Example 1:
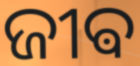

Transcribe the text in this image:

ଜୀଵ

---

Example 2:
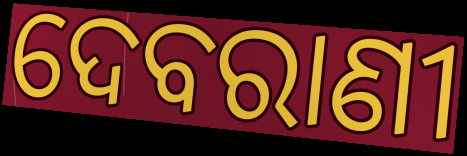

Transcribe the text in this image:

ଦେବରାଣୀ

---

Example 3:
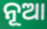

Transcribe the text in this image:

ନୂଆ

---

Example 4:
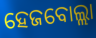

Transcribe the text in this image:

ହେଜବୋଲ୍ଲା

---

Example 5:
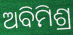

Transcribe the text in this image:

ଅବିମିଶ୍ର